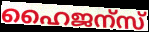
ഹൈജന്സ്